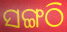
ସଙ୍ଗଠି